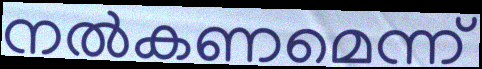
നൽകണമെന്ന്